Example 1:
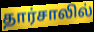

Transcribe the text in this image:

தார்சாலில்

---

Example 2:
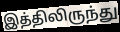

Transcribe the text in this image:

இத்திலிருந்து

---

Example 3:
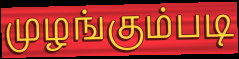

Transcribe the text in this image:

முழங்கும்படி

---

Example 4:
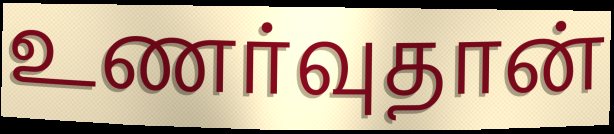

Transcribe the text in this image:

உணர்வுதான்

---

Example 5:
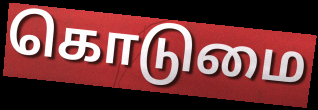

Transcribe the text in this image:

கொடுமை